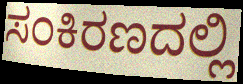
ಸಂಕಿರಣದಲ್ಲಿ